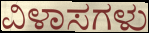
ವಿಳಾಸಗಳು